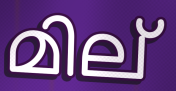
മില്